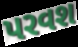
પરવશ